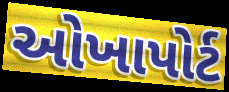
ઓખાપોર્ટ